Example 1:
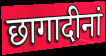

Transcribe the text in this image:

छागादीनां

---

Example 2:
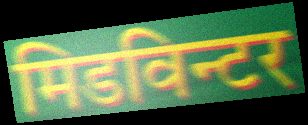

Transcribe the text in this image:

मिडविन्टर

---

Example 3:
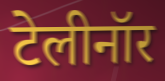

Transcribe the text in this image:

टेलीनॉर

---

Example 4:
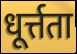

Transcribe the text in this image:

धूर्त्तता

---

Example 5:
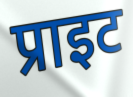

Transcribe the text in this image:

प्राइट